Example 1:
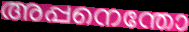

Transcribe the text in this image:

അപ്പനെന്തോ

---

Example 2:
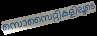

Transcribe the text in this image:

സൊസൈറ്റികളിലൂടെ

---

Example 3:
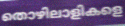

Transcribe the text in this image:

തൊഴിലാളികളെ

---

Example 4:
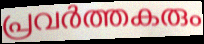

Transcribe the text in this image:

പ്രവർത്തകരും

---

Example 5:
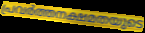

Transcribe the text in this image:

പ്രവർത്തനക്ഷമതയുടെ